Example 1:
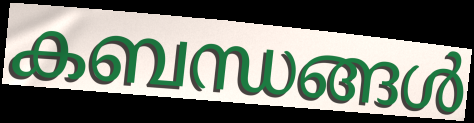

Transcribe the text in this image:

കബന്ധങ്ങൾ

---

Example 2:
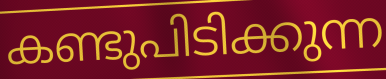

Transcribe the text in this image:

കണ്ടുപിടിക്കുന്ന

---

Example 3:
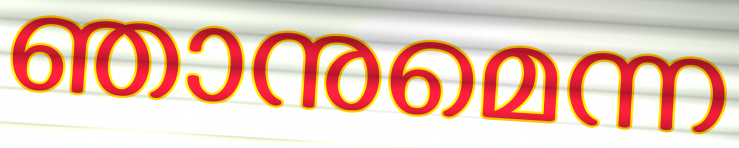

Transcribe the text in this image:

ഞാനുമെന്ന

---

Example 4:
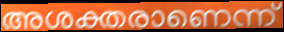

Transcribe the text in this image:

അശക്തരാണെന്ന്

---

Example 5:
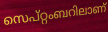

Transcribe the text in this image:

സെപ്റ്റംബറിലാണ്